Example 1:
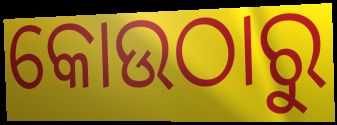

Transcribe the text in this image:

କୋଉଠାରୁ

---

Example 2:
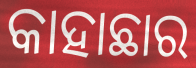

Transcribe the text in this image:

କାହାଛାର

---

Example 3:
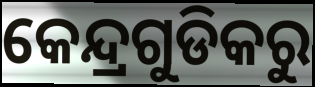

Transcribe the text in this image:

କେନ୍ଦ୍ରଗୁଡିକରୁ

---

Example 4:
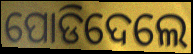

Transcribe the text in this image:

ପୋଡିଦେଲେ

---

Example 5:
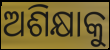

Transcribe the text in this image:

ଅଶିକ୍ଷାକୁ